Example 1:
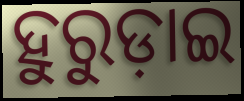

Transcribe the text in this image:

ହୁରୁଡ଼ାଇ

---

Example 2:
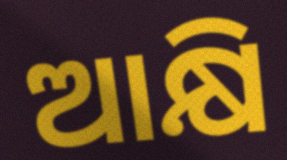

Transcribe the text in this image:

ଆକ୍ଷି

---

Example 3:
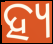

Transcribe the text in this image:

ହ୍ୟ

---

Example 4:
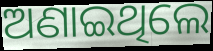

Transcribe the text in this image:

ଅଣାଇଥିଲେ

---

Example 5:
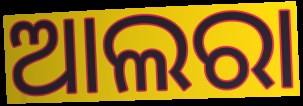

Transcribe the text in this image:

ଆଲରା